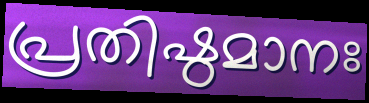
പ്രതിഷ്ഠമാനഃ